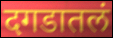
दगडातलं